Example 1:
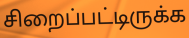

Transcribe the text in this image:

சிறைப்பட்டிருக்க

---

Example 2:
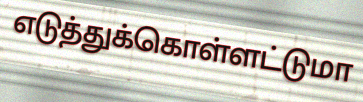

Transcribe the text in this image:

எடுத்துக்கொள்ளட்டுமா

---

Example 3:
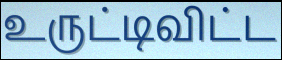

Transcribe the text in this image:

உருட்டிவிட்ட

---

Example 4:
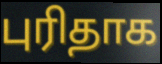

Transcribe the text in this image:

புரிதாக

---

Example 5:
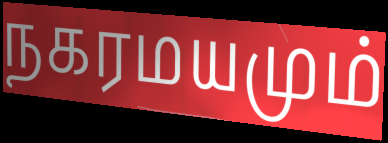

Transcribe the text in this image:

நகரமயமும்